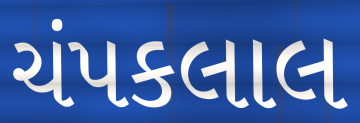
ચંપકલાલ